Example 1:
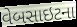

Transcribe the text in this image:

વેબસાઇટના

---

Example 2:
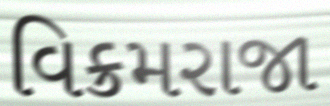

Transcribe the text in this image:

વિક્રમરાજા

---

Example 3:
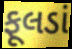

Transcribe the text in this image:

ફૂલડાં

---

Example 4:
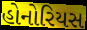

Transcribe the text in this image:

હોનોરિયસ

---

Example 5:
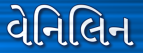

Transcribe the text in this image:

વેનિલિન